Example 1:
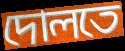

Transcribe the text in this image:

দোলতে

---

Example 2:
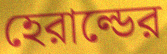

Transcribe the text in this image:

হেরাল্ডের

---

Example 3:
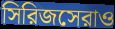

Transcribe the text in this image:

সিরিজসেরাও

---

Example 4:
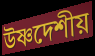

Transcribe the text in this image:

উষ্ণদেশীয়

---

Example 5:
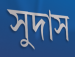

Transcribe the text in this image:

সুদাস